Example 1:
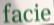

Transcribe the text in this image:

facie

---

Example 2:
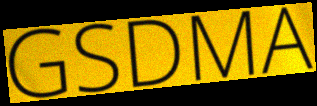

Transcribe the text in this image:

GSDMA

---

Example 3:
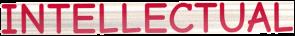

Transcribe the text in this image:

INTELLECTUAL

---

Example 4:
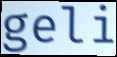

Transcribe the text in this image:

geli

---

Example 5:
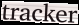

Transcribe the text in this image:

tracker